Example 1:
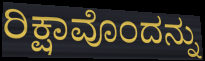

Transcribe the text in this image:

ರಿಕ್ಷಾವೊಂದನ್ನು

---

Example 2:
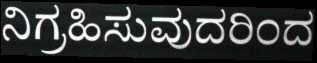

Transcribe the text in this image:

ನಿಗ್ರಹಿಸುವುದರಿಂದ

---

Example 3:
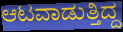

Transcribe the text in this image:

ಆಟವಾಡುತ್ತಿದ್ದ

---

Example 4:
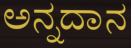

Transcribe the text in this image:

ಅನ್ನದಾನ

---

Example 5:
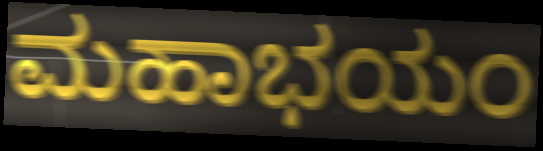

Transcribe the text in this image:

ಮಹಾಭಯಂ